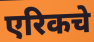
एरिकचे